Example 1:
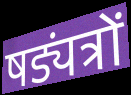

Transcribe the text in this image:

षड्यंत्रों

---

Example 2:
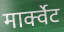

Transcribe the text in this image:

मार्क्वेट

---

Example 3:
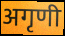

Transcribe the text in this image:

अगृणी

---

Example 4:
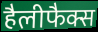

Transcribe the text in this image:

हैलीफैक्स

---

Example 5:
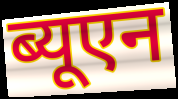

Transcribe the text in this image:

ब्यूएन